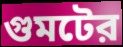
গুমটের